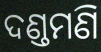
ଦଣ୍ଡମଣି